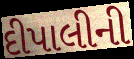
દીપાલીની